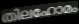
തിലഹോമം